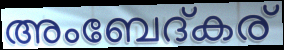
അംബേദ്കര്